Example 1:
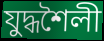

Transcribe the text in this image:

যুদ্ধশৈলী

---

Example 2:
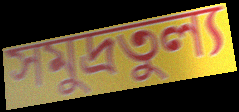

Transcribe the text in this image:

সমুদ্রতুল্য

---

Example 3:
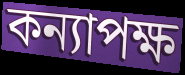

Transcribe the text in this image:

কন্যাপক্ষ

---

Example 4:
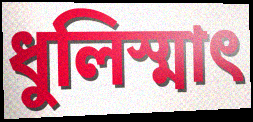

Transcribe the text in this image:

ধুলিস্মাৎ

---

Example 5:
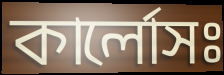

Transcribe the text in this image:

কার্লোসঃ